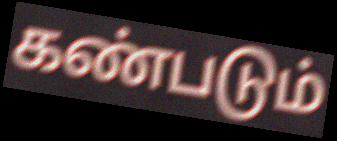
கண்படும்